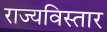
राज्यविस्तार